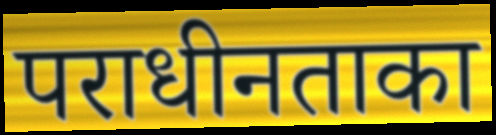
पराधीनताका